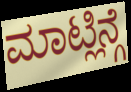
ಮಾಟ್ಲಿನ್ಗೆ